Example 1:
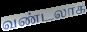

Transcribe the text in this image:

வண்டலாக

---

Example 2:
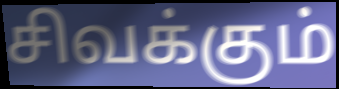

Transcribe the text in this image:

சிவக்கும்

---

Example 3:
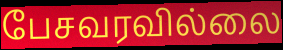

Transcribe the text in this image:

பேசவரவில்லை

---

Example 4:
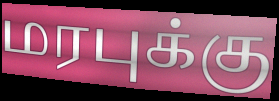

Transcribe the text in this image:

மரபுக்கு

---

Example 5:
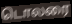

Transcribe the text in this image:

டொலரை